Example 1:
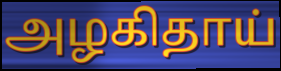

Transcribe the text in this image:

அழகிதாய்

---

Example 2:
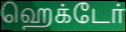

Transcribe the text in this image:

ஹெக்டேர்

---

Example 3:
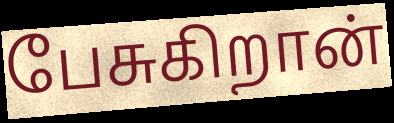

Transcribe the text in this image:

பேசுகிறான்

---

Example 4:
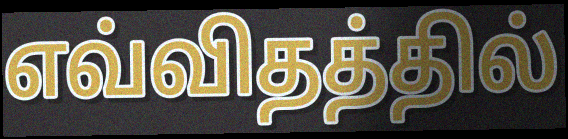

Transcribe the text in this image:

எவ்விதத்தில்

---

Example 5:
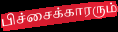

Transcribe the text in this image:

பிச்சைக்காரரும்